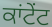
ਕਾਂਟੇਂਟ